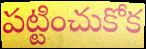
పట్టించుకోక